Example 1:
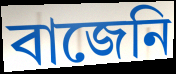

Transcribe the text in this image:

বাজেনি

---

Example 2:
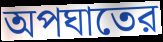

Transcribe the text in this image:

অপঘাতের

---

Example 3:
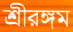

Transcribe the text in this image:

শ্রীরঙ্গম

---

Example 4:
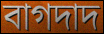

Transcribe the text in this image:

বাগদাদ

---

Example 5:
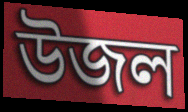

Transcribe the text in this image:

উজল